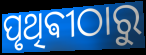
ପୃଥିଵୀଠାରୁ